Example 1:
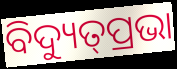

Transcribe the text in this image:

ବିଦ୍ୟୁତ୍‌ପ୍ରଭା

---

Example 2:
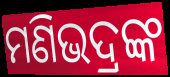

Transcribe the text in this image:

ମଣିଭଦ୍ରଙ୍କ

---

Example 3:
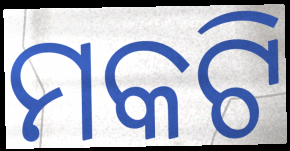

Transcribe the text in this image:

ମକଟି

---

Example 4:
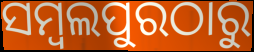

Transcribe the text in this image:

ସମ୍ବଲପୁରଠାରୁ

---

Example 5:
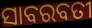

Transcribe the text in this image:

ସାବରବତୀ